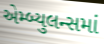
એમ્બ્યુલન્સમાં